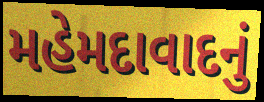
મહેમદાવાદનું